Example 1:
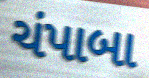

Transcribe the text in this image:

ચંપાબા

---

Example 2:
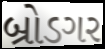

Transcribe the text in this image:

બ્રોડગર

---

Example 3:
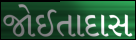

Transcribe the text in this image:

જોઈતાદાસ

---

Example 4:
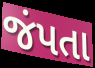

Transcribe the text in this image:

જંપતા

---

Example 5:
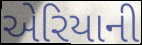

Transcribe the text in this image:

એરિયાની